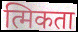
त्मिकता